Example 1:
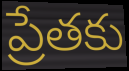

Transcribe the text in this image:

ప్రేతకు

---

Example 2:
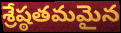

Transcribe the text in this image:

శ్రేష్ఠతమమైన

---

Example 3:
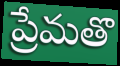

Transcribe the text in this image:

ప్రేమతొ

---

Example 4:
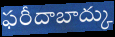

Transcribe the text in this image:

ఫరీదాబాద్కు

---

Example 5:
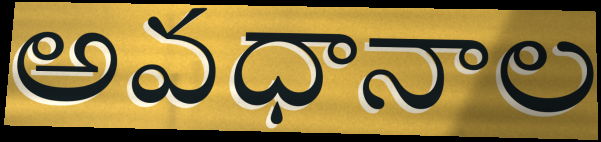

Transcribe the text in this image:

అవధానాల